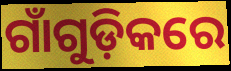
ଗାଁଗୁଡ଼ିକରେ